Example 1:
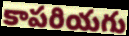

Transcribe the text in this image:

కాపరియగు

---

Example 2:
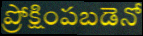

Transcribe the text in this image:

ప్రోక్షింపబడెనో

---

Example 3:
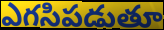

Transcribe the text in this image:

ఎగసిపడుతూ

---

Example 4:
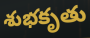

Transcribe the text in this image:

శుభకృతు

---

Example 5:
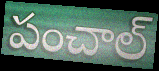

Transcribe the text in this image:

పంచాల్